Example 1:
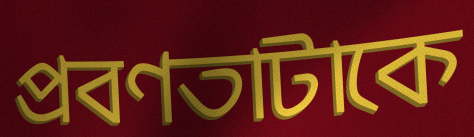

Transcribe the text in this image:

প্রবণতাটাকে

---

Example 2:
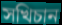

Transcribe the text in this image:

সখিচান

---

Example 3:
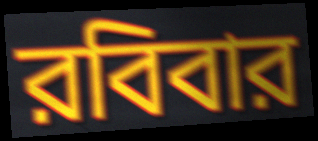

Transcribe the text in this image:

রবিবার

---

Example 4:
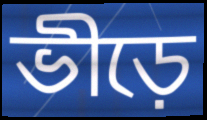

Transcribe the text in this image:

ভীড়ে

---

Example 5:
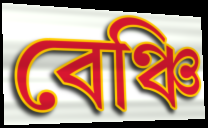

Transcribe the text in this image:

বেঞ্চি